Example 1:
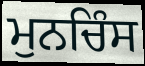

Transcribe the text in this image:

ਮੁਨਚਿੰਸ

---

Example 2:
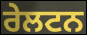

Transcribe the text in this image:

ਰੇਲਟਨ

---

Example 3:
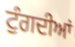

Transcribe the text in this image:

ਟੁੰਗਦੀਆਂ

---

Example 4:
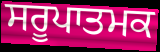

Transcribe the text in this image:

ਸਰੂਪਾਤਮਕ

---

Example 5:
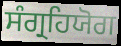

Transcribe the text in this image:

ਸੰਗ੍ਰਹਿਯੋਗ